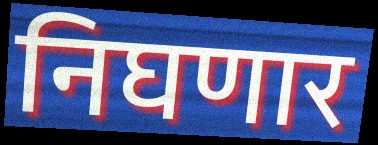
निघणार